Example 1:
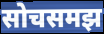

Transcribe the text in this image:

सोचसमझ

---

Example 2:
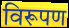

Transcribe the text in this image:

विरूपण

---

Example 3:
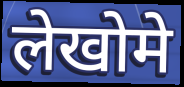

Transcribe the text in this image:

लेखोमे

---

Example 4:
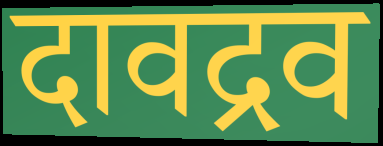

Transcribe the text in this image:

दावद्रव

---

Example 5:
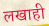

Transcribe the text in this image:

लखाही